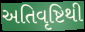
અતિવૃષ્ટિથી